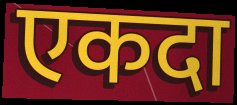
एकदा